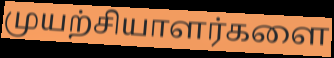
முயற்சியாளர்களை